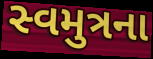
સ્વમુત્રના